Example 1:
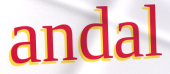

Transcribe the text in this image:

andal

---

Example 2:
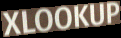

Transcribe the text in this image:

XLOOKUP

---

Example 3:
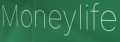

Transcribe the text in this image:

Moneylife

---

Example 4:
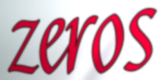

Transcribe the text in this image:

zeros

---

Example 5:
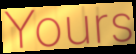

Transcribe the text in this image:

Yours